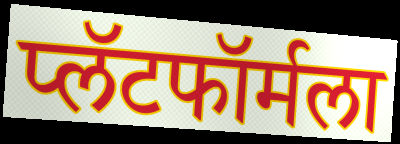
प्लॅटफॉर्मला